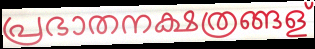
പ്രഭാതനക്ഷത്രങ്ങള്